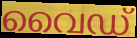
വൈഡ്